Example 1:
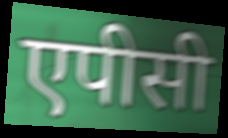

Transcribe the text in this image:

एपीसी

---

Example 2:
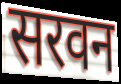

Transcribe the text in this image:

सरवन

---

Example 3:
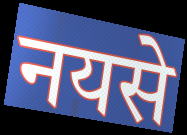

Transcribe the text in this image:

नयसे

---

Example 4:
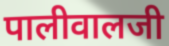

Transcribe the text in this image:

पालीवालजी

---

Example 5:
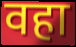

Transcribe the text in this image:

वहा